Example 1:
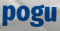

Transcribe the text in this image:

pogu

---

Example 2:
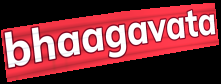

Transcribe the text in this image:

bhaagavata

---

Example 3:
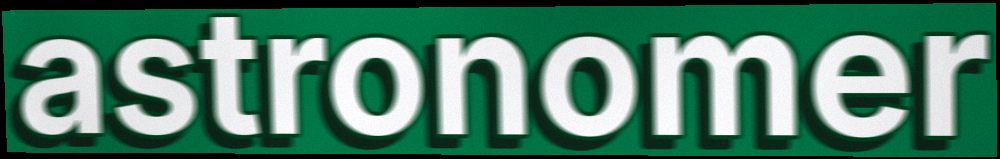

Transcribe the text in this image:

astronomer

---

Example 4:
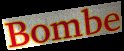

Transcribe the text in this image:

Bombe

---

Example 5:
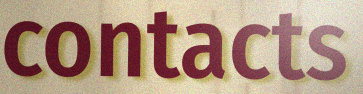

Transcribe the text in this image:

contacts